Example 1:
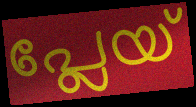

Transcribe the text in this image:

പ്ലേയ്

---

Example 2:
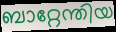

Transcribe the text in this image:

ബാറ്റേന്തിയ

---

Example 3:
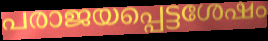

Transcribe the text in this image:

പരാജയപ്പെട്ടശേഷം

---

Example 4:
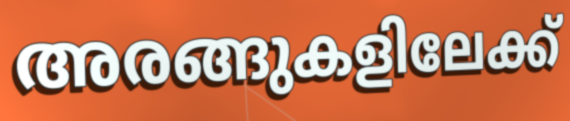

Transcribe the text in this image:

അരങ്ങുകളിലേക്ക്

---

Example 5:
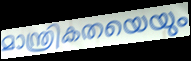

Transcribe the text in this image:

മാന്ത്രികതയെയും